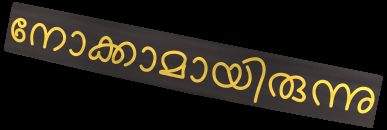
നോക്കാമായിരുന്നു